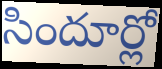
సిందూర్లో